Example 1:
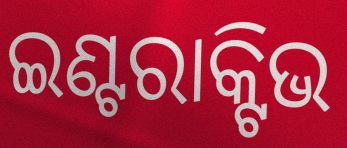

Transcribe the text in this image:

ଇଣ୍ଟରାକ୍ଟିଭ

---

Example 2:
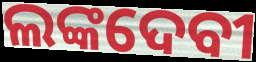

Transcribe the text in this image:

ଲଙ୍କଦେବୀ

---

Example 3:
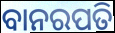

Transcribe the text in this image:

ବାନରପତି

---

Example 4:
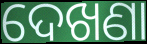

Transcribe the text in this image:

ଦେଖଣା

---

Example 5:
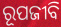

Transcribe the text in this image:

ରୂପଜୀବି